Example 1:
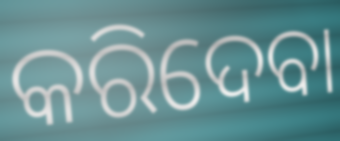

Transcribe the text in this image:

କରିଦେବା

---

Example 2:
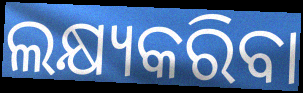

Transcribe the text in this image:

ଲକ୍ଷ୍ୟକରିବା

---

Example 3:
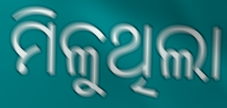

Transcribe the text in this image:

ମିଳୁଥିଲା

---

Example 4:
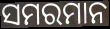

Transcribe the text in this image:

ସମରମାନ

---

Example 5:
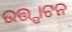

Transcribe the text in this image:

ଉତ୍ତ୍ପାଟନ